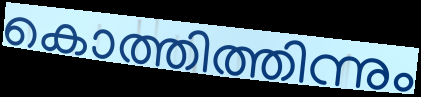
കൊത്തിത്തിന്നും